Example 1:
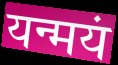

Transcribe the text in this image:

यन्मयं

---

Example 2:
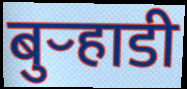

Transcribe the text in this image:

बुऱ्हाडी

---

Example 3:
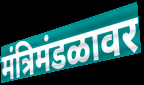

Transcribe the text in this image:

मंत्रिमंडळावर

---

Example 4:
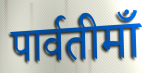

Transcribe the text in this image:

पार्वतीमाँ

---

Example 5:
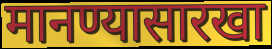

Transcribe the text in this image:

मानण्यासारखा